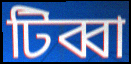
টিব্বা